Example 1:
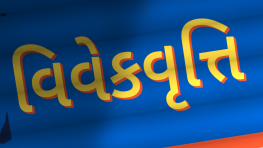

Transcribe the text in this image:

વિવેકવૃત્તિ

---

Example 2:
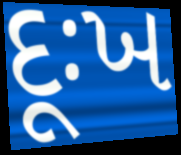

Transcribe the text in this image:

દૂઃખ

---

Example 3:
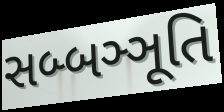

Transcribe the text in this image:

સબ્બઞ્ઞૂતિ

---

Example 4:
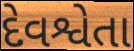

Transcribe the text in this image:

દેવશ્વેતા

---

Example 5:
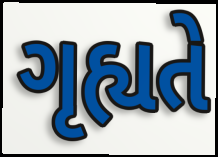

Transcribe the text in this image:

ગૃહ્યતે